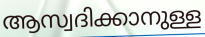
ആസ്വദിക്കാനുള്ള